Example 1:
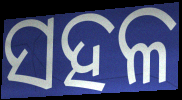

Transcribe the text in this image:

ସହଳ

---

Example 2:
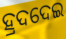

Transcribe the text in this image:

ହ୍ରଦଦେଇ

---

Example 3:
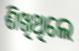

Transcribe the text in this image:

ଶିଖିଥିଲେ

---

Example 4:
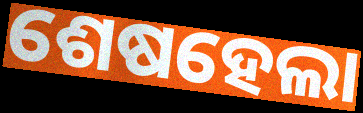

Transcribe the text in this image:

ଶେଷହେଲା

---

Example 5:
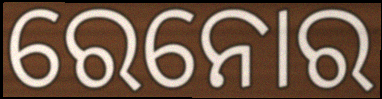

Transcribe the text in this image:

ରେନୋର